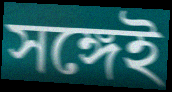
সঙ্গেই